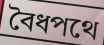
বৈধপথে